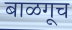
बाळगूच